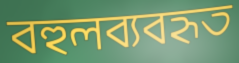
বহুলব্যবহৃত